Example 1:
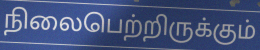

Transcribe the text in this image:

நிலைபெற்றிருக்கும்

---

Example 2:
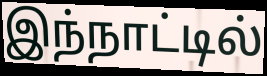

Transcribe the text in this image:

இந்நாட்டில்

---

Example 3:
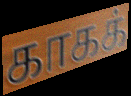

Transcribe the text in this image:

காகக்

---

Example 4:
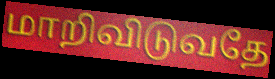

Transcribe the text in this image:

மாறிவிடுவதே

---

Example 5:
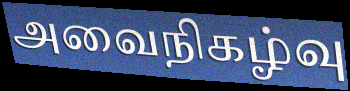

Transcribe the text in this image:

அவைநிகழ்வு